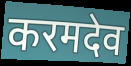
करमदेव